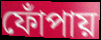
ফোঁপায়